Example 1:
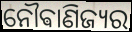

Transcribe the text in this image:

ନୌଵାଣିଜ୍ୟର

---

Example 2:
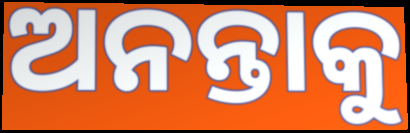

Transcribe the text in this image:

ଅନନ୍ତାକୁ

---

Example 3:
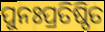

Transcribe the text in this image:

ପୁନଃପ୍ରତିଷ୍ଠିତ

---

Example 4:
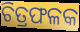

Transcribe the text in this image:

ଚିତ୍ରଫଳକ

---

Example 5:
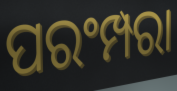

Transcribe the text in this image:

ପରଂମ୍ପରା